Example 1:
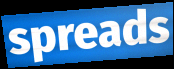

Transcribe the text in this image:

spreads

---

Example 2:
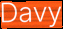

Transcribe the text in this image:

Davy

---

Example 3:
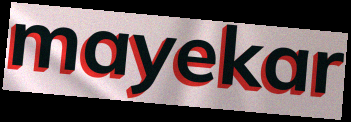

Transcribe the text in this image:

mayekar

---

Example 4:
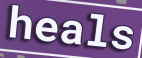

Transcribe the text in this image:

heals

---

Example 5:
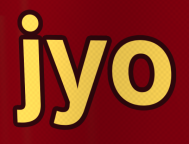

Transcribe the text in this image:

jyo